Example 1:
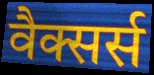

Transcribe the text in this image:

वैक्सर्स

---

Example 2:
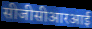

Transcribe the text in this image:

सीजीसीआरआई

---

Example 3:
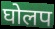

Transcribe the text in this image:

घोलप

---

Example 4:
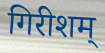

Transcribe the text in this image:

गिरीशम्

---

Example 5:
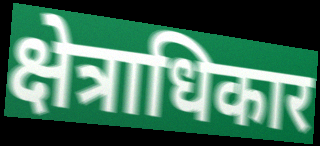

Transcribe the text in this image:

क्षेत्राधिकार